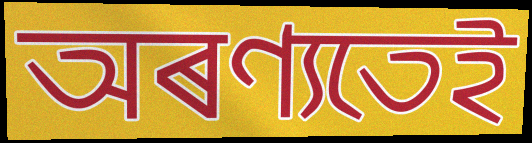
অৰণ্যতেই